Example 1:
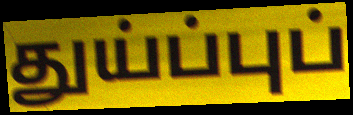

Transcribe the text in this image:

துய்ப்புப்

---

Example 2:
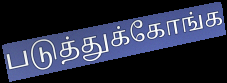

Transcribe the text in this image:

படுத்துக்கோங்க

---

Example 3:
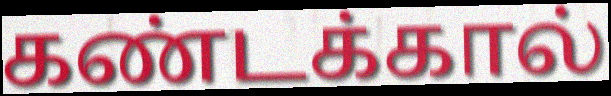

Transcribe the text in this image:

கண்டக்கால்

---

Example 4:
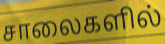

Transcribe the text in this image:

சாலைகளில்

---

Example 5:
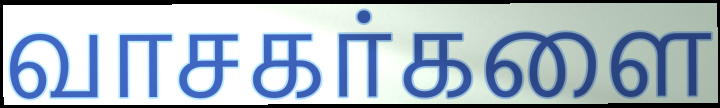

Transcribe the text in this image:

வாசகர்களை